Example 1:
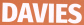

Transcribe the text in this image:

DAVIES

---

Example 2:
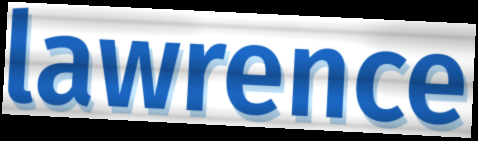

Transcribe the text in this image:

lawrence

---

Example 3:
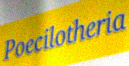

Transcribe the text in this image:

Poecilotheria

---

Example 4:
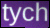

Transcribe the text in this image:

tych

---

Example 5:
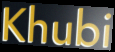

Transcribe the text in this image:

Khubi